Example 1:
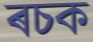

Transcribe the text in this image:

ৰচক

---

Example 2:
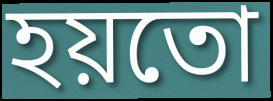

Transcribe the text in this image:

হয়তো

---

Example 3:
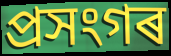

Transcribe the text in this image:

প্ৰসংগৰ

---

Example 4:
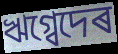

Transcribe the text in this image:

ঋগ্বেদেৰ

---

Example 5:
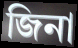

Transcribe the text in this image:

জিনা